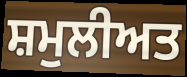
ਸ਼ਮੁਲੀਅਤ